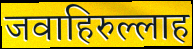
जवाहिरुल्लाह